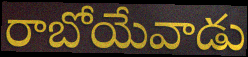
రాబోయేవాడు